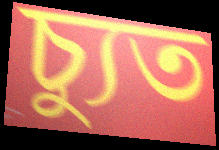
চ্যুত